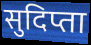
सुदिप्ता